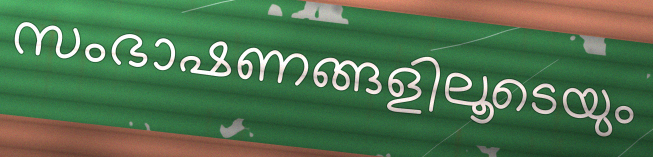
സംഭാഷണങ്ങളിലൂടെയും